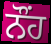
ਨੌੰਹ